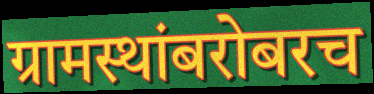
ग्रामस्थांबरोबरच